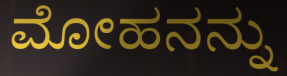
ಮೋಹನನ್ನು